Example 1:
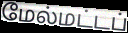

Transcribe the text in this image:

மேல்மட்டப்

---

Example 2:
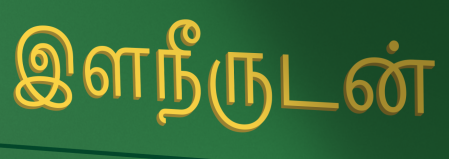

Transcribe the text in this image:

இளநீருடன்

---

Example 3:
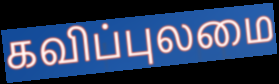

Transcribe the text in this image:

கவிப்புலமை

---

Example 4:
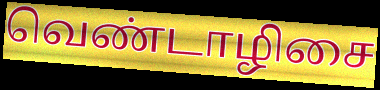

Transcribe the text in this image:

வெண்டாழிசை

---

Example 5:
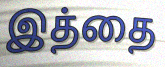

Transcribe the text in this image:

இத்தை